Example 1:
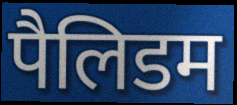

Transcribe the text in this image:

पैलिडम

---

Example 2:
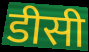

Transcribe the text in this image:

डीसी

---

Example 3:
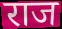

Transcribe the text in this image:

राज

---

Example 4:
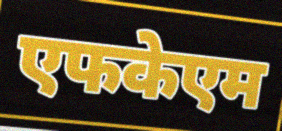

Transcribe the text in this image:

एफकेएम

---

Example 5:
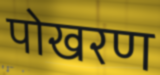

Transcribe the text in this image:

पोखरण